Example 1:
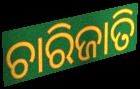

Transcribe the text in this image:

ଚାରିଜାତି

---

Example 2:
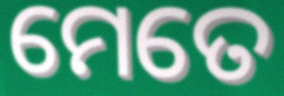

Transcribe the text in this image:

ମେତେ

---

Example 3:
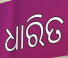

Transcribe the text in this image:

ଧାରିତ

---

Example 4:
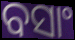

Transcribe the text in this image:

ବସାଂ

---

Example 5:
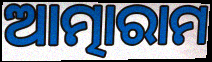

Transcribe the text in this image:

ଆତ୍ମାରାମ